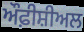
ਔਫ਼ੀਸ਼ੀਅਲ